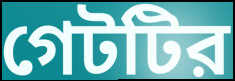
গেটটির